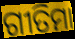
ଗୀତିମା